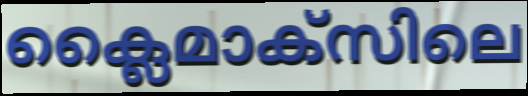
ക്ലൈമാക്സിലെ